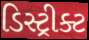
ડિસ્ટ્રીક્ટ